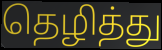
தெழித்து